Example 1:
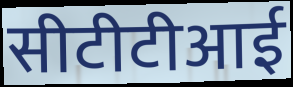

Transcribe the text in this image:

सीटीटीआई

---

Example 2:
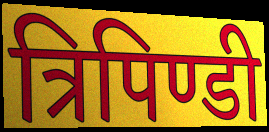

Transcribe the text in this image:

त्रिपिण्डी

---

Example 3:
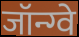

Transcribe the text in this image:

जॉन्ग्वे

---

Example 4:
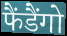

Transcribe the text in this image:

फैंडैंगो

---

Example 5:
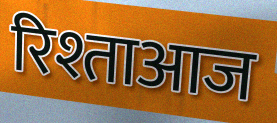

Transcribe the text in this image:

रिश्ताआज